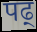
पढ्